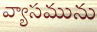
వ్యాసమును